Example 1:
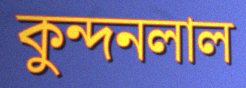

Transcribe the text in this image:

কুন্দনলাল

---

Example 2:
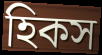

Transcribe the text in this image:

হিকস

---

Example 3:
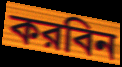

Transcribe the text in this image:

করবিন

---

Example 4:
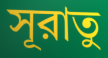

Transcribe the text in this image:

সূরাতু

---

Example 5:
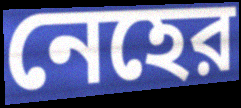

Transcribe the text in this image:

নেহের